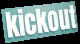
kickout